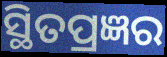
ସ୍ଥିତପ୍ରଜ୍ଞର